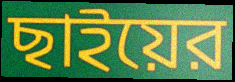
ছাইয়ের